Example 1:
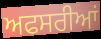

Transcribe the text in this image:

ਅਫਸਰੀਆਂ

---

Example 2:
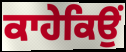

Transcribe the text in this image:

ਕਾਹੇਕਿਉਂ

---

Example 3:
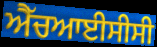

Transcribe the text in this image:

ਐੱਚਆਈਸੀਸੀ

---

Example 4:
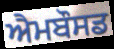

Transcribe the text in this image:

ਐਮਬੌਸਡ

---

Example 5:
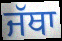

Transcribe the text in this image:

ਜੱਥਾ